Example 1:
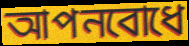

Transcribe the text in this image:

আপনবোধে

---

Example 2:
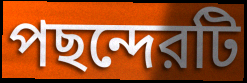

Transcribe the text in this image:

পছন্দেরটি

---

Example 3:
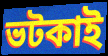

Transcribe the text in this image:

ভটকাই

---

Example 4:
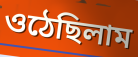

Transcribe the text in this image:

ওঠেছিলাম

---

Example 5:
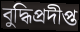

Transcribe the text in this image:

বুদ্ধিপ্রদীপ্ত